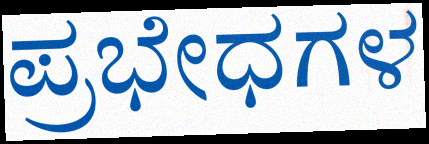
ಪ್ರಭೇಧಗಳ